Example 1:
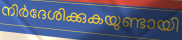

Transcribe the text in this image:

നിർദേശിക്കുകയുണ്ടായി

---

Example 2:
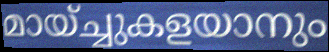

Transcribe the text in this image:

മായ്ച്ചുകളയാനും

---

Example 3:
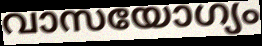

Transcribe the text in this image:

വാസയോഗ്യം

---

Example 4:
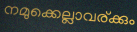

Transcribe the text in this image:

നമുക്കെല്ലാവര്ക്കും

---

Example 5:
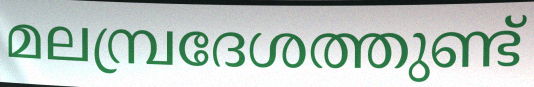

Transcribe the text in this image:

മലമ്പ്രദേശത്തുണ്ട്